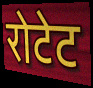
रोटेट